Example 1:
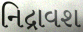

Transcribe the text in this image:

નિદ્રાવશ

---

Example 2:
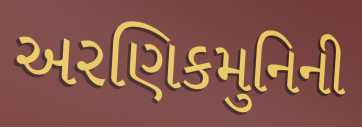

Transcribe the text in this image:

અરણિકમુનિની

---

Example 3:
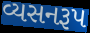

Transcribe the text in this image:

વ્યસનરૂપ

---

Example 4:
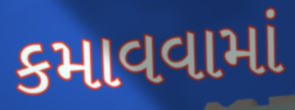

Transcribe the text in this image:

કમાવવામાં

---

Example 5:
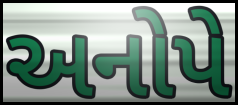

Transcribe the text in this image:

અનોપે